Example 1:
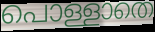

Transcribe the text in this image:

പൊള്ളാതെ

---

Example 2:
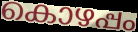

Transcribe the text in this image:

കൊഴപ്പം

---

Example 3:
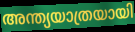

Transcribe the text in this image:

അന്ത്യയാത്രയായി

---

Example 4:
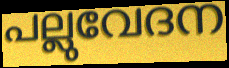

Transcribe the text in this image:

പല്ലുവേദന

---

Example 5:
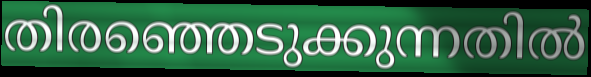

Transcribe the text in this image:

തിരഞ്ഞെടുക്കുന്നതിൽ